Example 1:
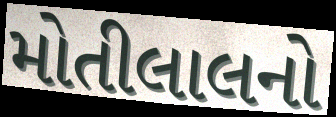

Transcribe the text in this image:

મોતીલાલનો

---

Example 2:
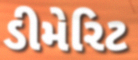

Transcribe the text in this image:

ડીમેરિટ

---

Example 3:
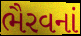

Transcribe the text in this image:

ભૈરવનાં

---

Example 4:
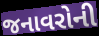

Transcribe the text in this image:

જનાવરોની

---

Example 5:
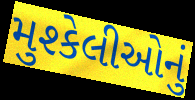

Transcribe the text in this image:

મુશ્કેલીઓનું